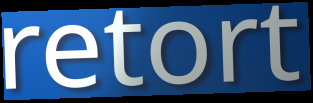
retort